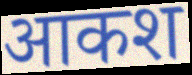
आकश